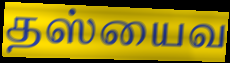
தஸ்யைவ